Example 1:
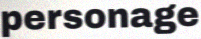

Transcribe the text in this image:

personage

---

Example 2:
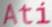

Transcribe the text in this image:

Ati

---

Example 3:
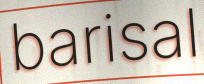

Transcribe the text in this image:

barisal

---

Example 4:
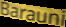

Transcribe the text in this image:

Barauni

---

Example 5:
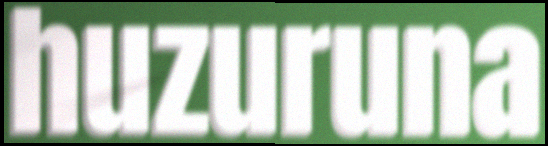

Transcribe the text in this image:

huzuruna